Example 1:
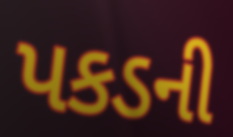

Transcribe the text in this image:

પકડની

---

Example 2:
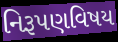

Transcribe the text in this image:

નિરૂપણવિષય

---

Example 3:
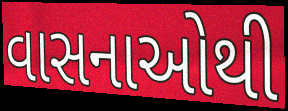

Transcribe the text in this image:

વાસનાઓથી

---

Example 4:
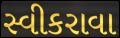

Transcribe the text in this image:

સ્વીકરાવા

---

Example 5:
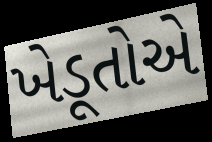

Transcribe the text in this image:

ખેડૂતોએ